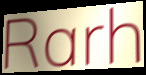
Rarh